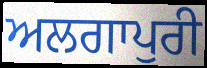
ਅਲਗਾਪੁਰੀ